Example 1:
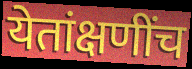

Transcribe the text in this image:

येतांक्षणींच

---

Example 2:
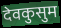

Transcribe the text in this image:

देवकुसुम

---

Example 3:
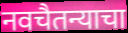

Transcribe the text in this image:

नवचैतन्याचा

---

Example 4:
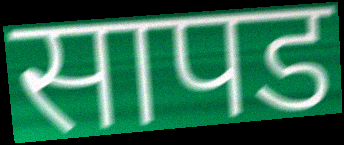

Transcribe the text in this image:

सापड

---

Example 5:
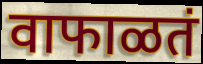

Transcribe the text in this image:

वाफाळतं